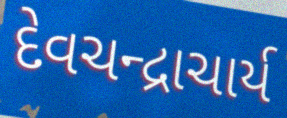
દેવચન્દ્રાચાર્ય